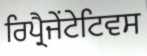
ਰਿਪ੍ਰੈਜੇਂਟੇਟਿਵਸ